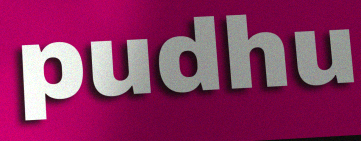
pudhu